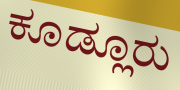
ಕೂಡ್ಲೂರು